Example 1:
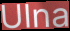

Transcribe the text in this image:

Ulna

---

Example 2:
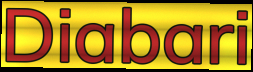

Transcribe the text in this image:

Diabari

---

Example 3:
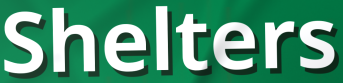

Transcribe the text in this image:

Shelters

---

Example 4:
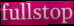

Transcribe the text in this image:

fullstop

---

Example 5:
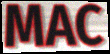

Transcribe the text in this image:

MAC